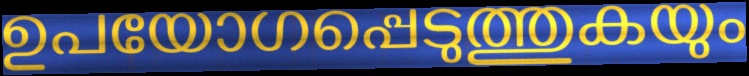
ഉപയോഗപ്പെടുത്തുകയും